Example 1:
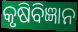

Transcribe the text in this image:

କୃଷିବିଜ୍ଞାନ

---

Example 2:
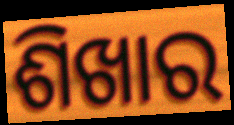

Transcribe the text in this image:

ଶିଖାର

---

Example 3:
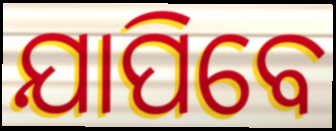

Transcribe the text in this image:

ଯାପିବେ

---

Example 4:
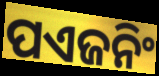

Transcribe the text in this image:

ପଏଜନିଂ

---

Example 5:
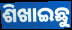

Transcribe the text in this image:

ଶିଖାଇଛୁ